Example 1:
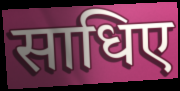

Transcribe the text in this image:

साधिए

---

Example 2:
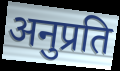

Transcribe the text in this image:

अनुप्रति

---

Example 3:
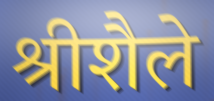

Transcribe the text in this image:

श्रीशैले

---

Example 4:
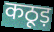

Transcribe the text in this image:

कठूड़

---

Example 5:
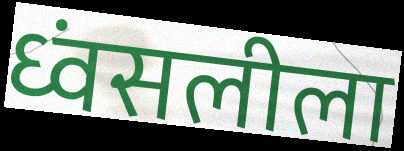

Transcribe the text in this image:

ध्वंसलीला